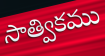
సాత్వికము